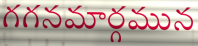
గగనమార్గమున